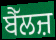
ਬੈੱਲਜ਼